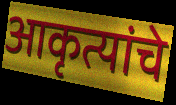
आकृत्यांचे